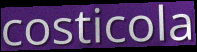
costicola